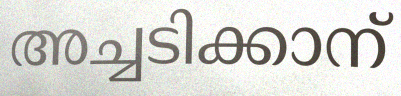
അച്ചടിക്കാന്